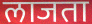
लाजता